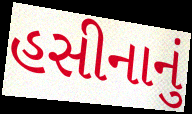
હસીનાનું